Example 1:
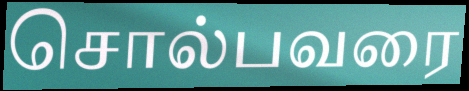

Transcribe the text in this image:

சொல்பவரை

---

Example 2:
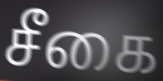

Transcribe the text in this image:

சீகை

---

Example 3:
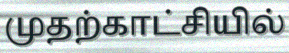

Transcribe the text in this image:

முதற்காட்சியில்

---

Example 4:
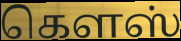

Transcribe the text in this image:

கௌஸ்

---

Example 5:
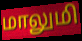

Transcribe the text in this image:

மாலுமி